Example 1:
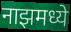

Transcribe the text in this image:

नाझमध्ये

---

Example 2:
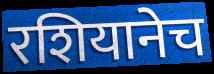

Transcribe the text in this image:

रशियानेच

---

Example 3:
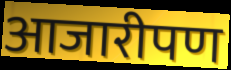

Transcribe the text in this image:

आजारीपण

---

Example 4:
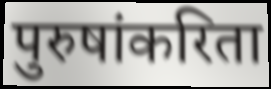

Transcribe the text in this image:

पुरुषांकरिता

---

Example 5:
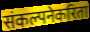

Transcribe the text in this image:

संकल्पनेकरिता